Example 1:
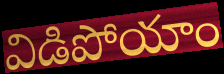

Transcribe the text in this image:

విడిపోయాం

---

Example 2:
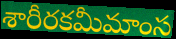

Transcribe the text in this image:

శారీరకమీమాంస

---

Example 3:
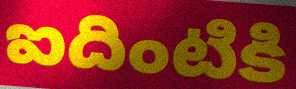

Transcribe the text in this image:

ఐదింటికి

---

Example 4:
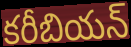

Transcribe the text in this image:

కరీబియన్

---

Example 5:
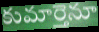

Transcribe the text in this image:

కుమార్తెనూ